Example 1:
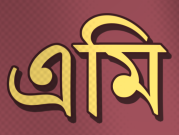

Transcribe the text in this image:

এমি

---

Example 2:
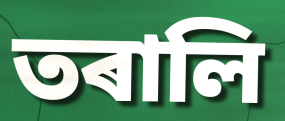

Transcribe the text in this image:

তৰালি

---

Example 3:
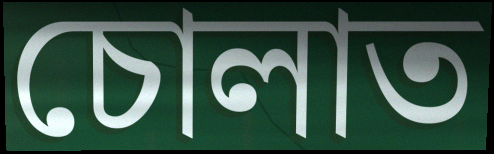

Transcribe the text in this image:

চোলাত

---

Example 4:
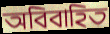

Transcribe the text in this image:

অবিবাহিত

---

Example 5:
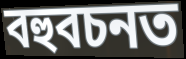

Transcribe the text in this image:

বহুবচনত